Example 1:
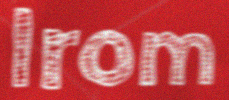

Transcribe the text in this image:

Irom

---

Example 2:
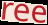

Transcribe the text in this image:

ree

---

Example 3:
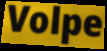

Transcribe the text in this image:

Volpe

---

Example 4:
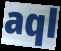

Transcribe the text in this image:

aql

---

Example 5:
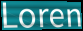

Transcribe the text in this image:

Loren